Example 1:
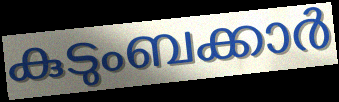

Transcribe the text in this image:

കുടുംബക്കാർ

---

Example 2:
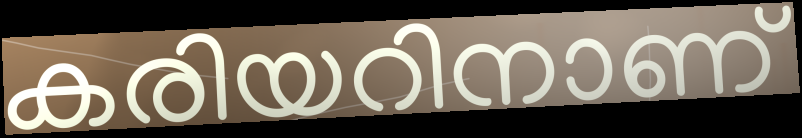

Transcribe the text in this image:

കരിയറിനാണ്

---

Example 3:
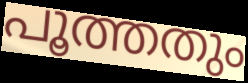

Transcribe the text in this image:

പൂത്തതും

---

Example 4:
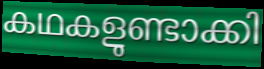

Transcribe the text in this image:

കഥകളുണ്ടാക്കി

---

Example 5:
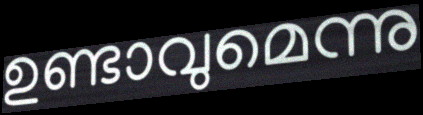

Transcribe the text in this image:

ഉണ്ടാവുമെന്നു